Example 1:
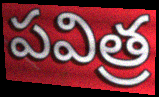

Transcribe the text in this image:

పవిత్ర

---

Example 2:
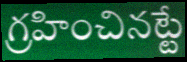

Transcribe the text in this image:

గ్రహించినట్టే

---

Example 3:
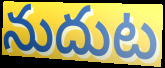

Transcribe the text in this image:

నుదుట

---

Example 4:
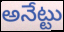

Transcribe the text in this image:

అనేట్టు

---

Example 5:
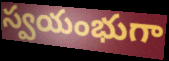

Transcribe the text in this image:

స్వయంభుగా